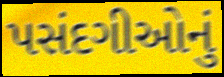
પસંદગીઓનું